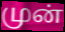
முன்